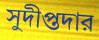
সুদীপ্তদার